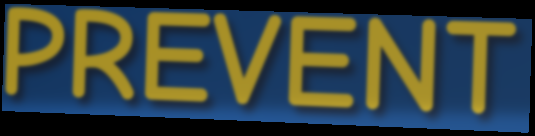
PREVENT